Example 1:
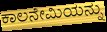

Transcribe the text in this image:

ಕಾಲನೇಮಿಯನ್ನು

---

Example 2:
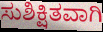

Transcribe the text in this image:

ಸುಶಿಕ್ಷಿತವಾಗಿ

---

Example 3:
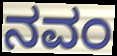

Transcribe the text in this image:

ನವಂ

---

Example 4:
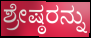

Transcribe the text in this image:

ಶ್ರೇಷ್ಠರನ್ನು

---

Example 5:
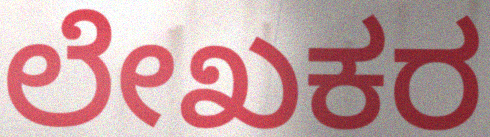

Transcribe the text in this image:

ಲೇಖಕರ